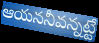
ఆయననీవన్నట్టే